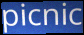
picnic